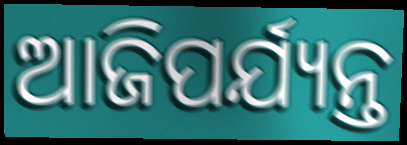
ଆଜିପର୍ଯ୍ୟନ୍ତ